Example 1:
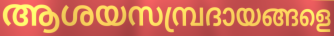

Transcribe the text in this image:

ആശയസമ്പ്രദായങ്ങളെ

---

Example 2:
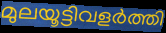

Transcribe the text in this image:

മുലയൂട്ടിവളർത്തി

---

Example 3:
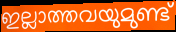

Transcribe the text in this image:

ഇല്ലാത്തവയുമുണ്ട്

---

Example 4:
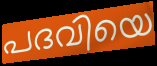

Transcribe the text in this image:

പദവിയെ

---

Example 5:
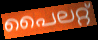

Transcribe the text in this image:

പൈലറ്റ്